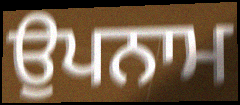
ਉਪਨਾਮ